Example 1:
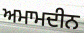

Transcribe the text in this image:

ਅਮਾਮਦੀਨ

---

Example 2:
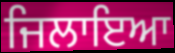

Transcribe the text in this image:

ਜਿਲਾਇਆ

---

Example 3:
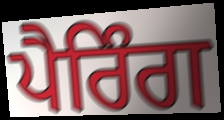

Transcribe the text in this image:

ਪੈਰਿੰਗ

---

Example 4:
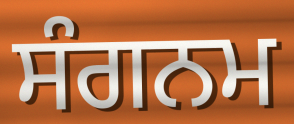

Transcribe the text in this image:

ਸੰਗਨਮ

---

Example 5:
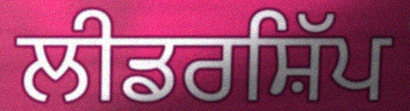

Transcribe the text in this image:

ਲੀਡਰਸ਼ਿੱਪ